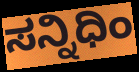
ಸನ್ನಿಧಿಂ